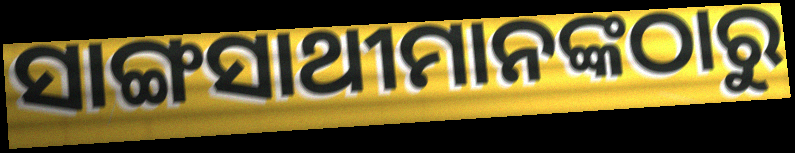
ସାଙ୍ଗସାଥୀମାନଙ୍କଠାରୁ